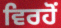
ਵਿਰਹੋਂ